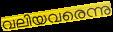
വലിയവരെന്നു